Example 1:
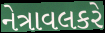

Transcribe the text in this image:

નેત્રાવલકરે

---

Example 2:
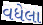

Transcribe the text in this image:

વધેલા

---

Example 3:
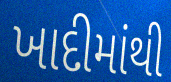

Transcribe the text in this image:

ખાદીમાંથી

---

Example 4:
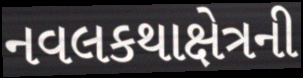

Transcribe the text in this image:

નવલકથાક્ષેત્રની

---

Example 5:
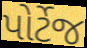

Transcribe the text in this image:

પોર્ટેજ